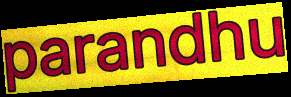
parandhu